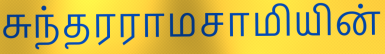
சுந்தரராமசாமியின்